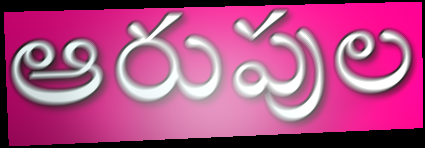
ఆరుపుల